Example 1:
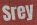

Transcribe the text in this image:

Srey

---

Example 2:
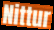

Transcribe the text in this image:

Nittur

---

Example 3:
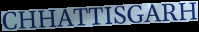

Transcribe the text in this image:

CHHATTISGARH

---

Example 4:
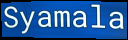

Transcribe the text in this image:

Syamala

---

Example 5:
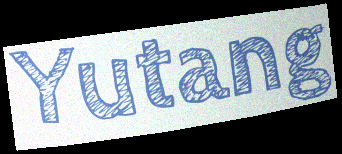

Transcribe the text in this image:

Yutang